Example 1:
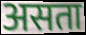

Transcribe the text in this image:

असता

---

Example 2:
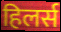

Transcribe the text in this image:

हिलर्स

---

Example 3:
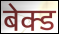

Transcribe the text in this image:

बेक्ड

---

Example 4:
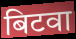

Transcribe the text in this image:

बिटवा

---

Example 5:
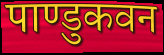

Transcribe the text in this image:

पाण्डुकवन